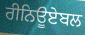
ਰੀਨਿਊਏਬਲ